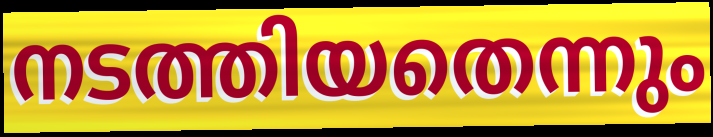
നടത്തിയതെന്നും